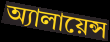
অ্যালায়েন্স